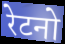
रेटनो